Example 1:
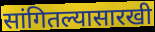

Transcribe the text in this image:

सांगितल्यासारखी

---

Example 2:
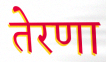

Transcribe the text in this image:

तेरणा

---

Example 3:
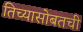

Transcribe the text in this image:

तिच्यासोबतची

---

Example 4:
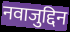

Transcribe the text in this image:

नवाजुद्दिन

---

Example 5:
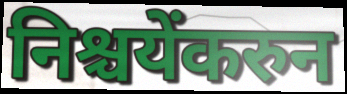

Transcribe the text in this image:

निश्चयेंकरुन